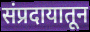
संप्रदायातून